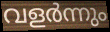
വളർന്നും